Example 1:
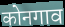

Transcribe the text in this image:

कोनगाव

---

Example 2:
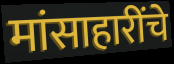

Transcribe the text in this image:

मांसाहारींचे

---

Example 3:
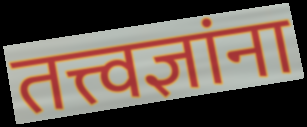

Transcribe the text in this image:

तत्त्वज्ञांना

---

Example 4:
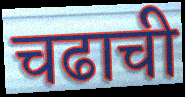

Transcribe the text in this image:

चढाची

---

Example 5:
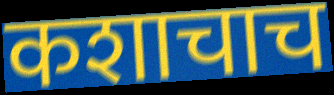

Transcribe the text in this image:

कशाचाच